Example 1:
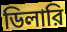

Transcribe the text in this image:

ডিলারি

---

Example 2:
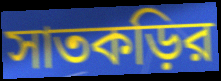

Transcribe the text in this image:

সাতকড়ির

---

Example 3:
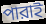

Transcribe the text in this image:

পারাই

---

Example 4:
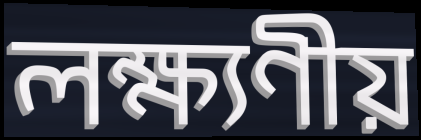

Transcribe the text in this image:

লক্ষ্যণীয়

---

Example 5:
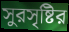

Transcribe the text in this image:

সুরসৃষ্টির